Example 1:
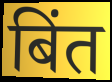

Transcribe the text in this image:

बिंत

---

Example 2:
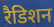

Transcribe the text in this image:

रैडिशन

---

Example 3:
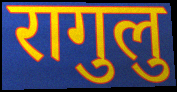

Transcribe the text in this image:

रागुलु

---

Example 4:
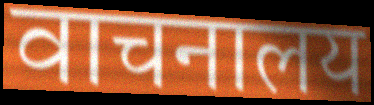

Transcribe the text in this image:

वाचनालय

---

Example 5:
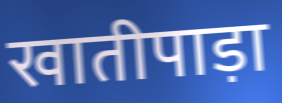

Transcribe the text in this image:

खातीपाड़ा